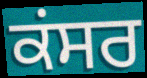
ਕਂਸਰ